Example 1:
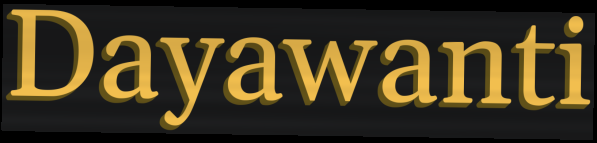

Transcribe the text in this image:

Dayawanti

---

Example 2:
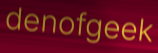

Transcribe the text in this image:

denofgeek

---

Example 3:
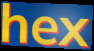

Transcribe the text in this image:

hex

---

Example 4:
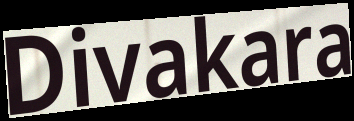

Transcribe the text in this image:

Divakara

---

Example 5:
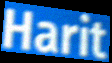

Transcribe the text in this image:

Harit